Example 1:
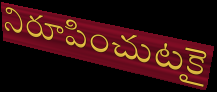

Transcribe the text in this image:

నిరూపించుటకై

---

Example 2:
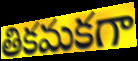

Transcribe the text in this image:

తికమకగా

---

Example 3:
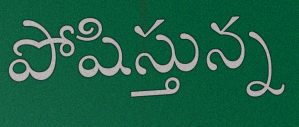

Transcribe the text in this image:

పోషిస్తున్న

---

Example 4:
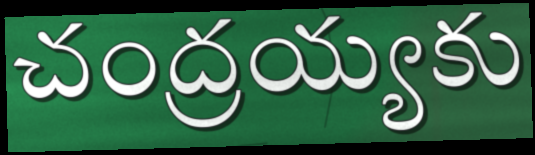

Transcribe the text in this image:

చంద్రయ్యకు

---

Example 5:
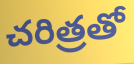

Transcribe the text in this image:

చరిత్రతో